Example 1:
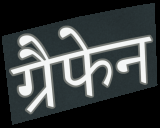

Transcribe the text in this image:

ग्रैफेन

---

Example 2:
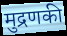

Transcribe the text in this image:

मुद्रणकी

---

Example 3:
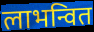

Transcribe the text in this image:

लाभन्वित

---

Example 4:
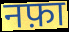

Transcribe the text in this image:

नफ़ा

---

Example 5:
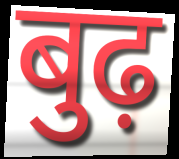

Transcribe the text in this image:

बुढ़